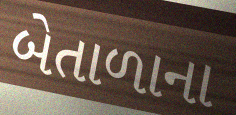
બેતાળાના